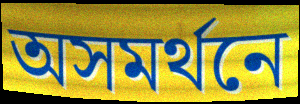
অসমর্থনে